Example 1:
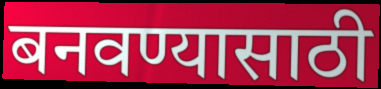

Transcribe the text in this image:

बनवण्‍यासाठी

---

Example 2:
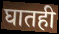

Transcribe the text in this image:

घातही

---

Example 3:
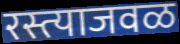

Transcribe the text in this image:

रस्त्याजवळ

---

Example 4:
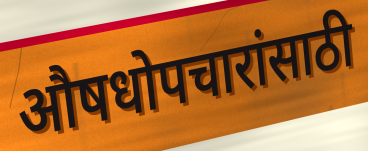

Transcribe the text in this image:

औषधोपचारांसाठी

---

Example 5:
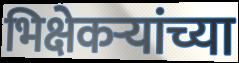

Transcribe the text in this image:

भिक्षेकऱ्यांच्या